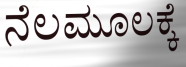
ನೆಲಮೂಲಕ್ಕೆ